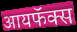
आयफॅक्स